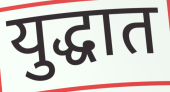
युद्धात